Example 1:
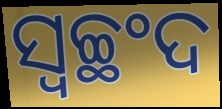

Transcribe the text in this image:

ସ୍ୱଚ୍ଛଂଦ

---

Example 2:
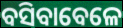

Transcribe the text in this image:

ବସିବାବେଳେ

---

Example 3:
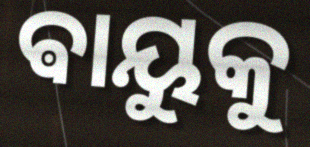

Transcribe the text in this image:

ଵାୟୁକୁ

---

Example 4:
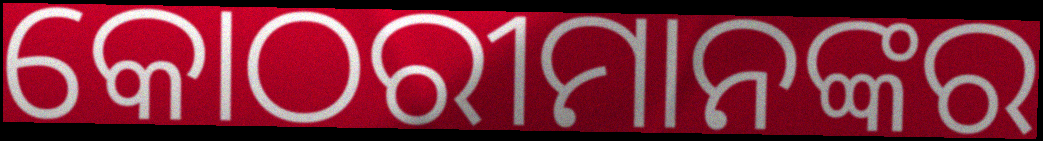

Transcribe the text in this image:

କୋଠରୀମାନଙ୍କର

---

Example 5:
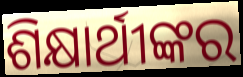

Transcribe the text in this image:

ଶିକ୍ଷାର୍ଥୀଙ୍କର